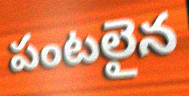
పంటలైన